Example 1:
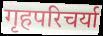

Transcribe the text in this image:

गृहपरिचर्या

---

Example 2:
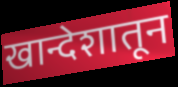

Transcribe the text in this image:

खान्देशातून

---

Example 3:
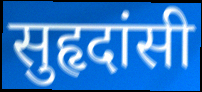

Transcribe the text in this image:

सुहृदांसी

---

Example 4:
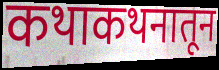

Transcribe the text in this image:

कथाकथनातून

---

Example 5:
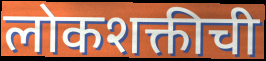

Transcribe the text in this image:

लोकशक्तीची